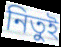
নিতুই